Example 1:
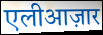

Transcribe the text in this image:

एलीआज़ार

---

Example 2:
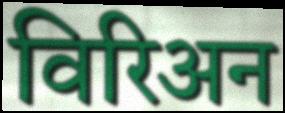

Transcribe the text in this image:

विरिअन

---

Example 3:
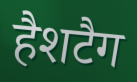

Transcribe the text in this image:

हैशटैग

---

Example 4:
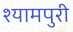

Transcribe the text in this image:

श्यामपुरी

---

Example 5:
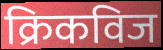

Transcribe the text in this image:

क्रिकविज